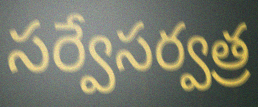
సర్వేసర్వత్ర